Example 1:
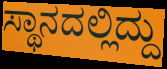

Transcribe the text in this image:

ಸ್ಥಾನದಲ್ಲಿದ್ದು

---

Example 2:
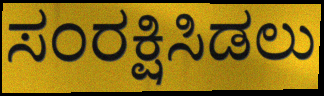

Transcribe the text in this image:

ಸಂರಕ್ಷಿಸಿಡಲು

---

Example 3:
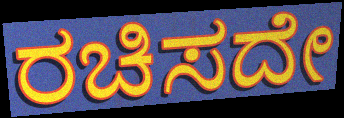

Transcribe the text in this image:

ರಚಿಸದೇ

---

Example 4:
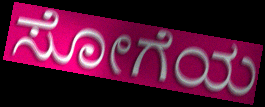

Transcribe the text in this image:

ಸೋಗೆಯ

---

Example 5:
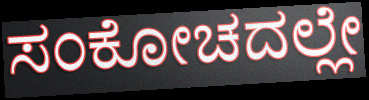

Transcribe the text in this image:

ಸಂಕೋಚದಲ್ಲೇ